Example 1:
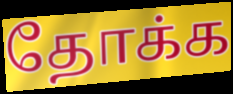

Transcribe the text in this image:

தோக்க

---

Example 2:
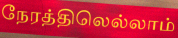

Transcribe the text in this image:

நேரத்திலெல்லாம்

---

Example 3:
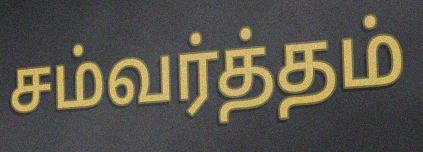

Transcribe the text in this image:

சம்வர்த்தம்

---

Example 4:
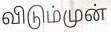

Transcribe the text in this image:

விடும்முன்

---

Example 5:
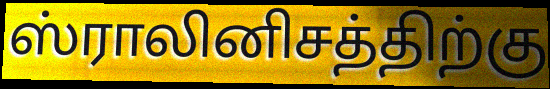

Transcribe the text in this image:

ஸ்ராலினிசத்திற்கு